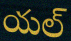
యల్